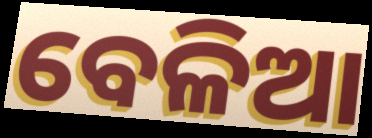
ବେଳିଆ